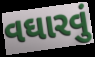
વઘારવું